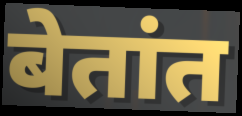
बेतांत